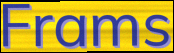
Frams